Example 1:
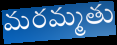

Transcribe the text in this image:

మరమ్మతు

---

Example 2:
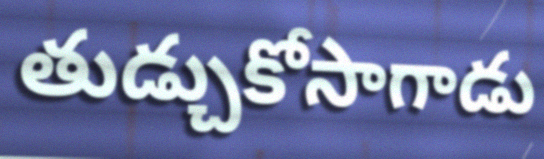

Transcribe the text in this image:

తుడ్చుకోసాగాడు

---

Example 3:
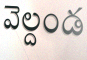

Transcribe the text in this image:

వెల్దండ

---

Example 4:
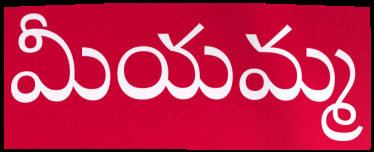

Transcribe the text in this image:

మీయమ్మ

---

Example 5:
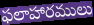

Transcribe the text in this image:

ఫలాహారములు